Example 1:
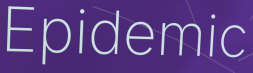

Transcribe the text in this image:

Epidemic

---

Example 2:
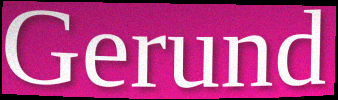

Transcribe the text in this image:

Gerund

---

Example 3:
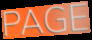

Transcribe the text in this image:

PAGE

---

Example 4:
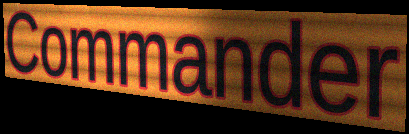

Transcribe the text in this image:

Commander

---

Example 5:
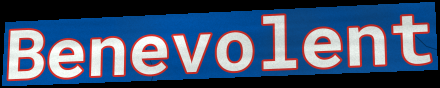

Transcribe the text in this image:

Benevolent